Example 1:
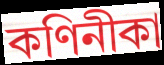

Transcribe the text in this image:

কণিনীকা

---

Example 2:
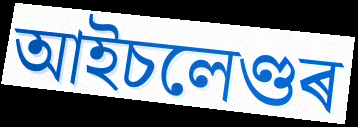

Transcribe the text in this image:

আইচলেণ্ডৰ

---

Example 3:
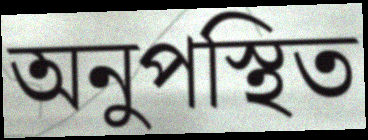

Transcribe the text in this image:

অনুপস্থিত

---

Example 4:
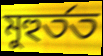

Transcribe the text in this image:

মুহুৰ্তত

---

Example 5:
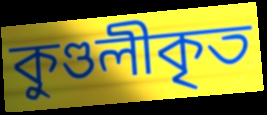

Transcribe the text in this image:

কুণ্ডলীকৃত